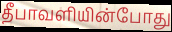
தீபாவளியின்போது